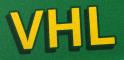
VHL